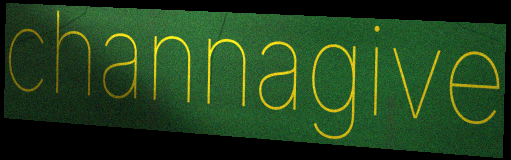
channagive